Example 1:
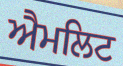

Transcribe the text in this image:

ਐਮਲਿਟ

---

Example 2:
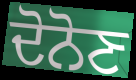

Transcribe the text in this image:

ਦੋਨੋਣ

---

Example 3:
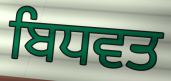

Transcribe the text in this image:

ਬਿਧਵਤ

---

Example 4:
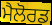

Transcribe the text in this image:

ਮੈਲੋਰਡ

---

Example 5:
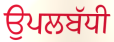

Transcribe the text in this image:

ਉਪਲਬੱਧੀ